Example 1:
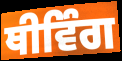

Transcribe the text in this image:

ਥੀਵਿੰਗ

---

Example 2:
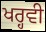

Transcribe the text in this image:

ਖਰ੍ਹਵੀ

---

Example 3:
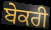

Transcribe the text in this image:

ਬੇਕਰੀ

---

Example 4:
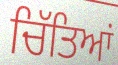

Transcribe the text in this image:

ਚਿੱਤਿਆਂ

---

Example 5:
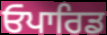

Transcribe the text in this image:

ਓਪਾਰਿਡ